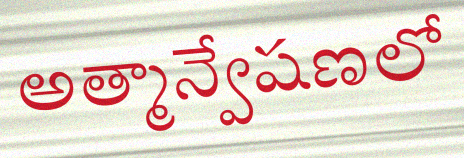
అత్మాన్వేషణలో